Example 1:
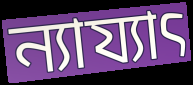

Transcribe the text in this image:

ন্যায্যাৎ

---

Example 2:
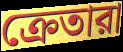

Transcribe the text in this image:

ক্রেতারা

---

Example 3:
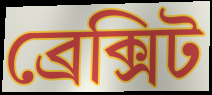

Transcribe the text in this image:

ব্রেক্সিট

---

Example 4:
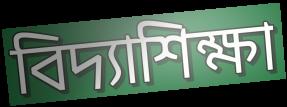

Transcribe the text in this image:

বিদ্যাশিক্ষা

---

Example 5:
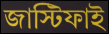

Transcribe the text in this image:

জাস্টিফাই